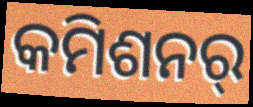
କମିଶନର୍